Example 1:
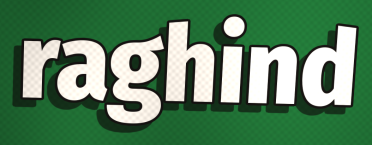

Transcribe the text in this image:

raghind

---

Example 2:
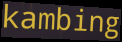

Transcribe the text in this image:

kambing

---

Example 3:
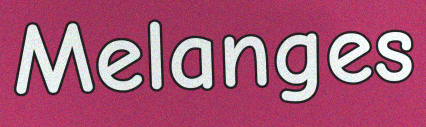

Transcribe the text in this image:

Melanges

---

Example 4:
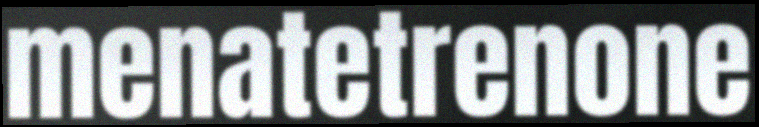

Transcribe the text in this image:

menatetrenone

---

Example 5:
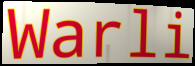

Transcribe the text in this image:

Warli